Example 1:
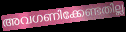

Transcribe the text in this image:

അവഗണിക്കേണ്ടതില്ല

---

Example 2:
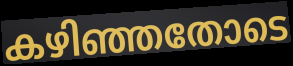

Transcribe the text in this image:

കഴിഞ്ഞതോടെ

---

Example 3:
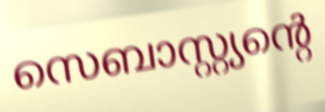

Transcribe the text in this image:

സെബാസ്റ്റ്യന്റെ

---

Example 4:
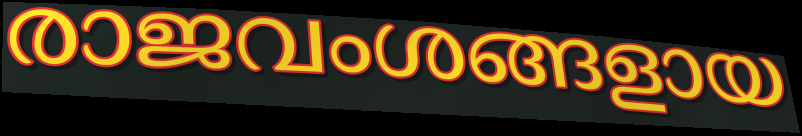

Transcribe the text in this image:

രാജവംശങ്ങളായ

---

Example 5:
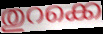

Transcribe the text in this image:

തുറക്കെ